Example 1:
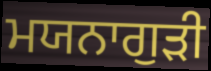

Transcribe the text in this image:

ਮਯਨਾਗੁੜੀ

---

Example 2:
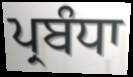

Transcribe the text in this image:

ਪ੍ਰਬੰਧਾ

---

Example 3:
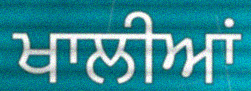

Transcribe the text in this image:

ਖਾਲੀਆਂ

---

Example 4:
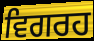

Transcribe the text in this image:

ਵਿਗਰਹ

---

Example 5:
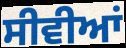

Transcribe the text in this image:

ਸੀਵੀਆਂ